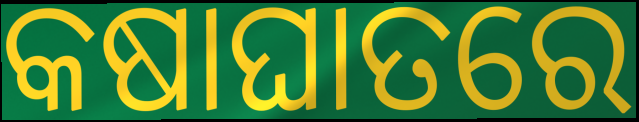
କଷାଘାତରେ